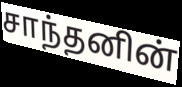
சாந்தனின்